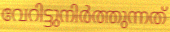
വേറിട്ടുനിർത്തുന്നത്